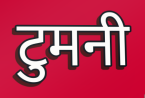
टुमनी